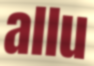
allu